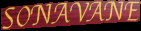
SONAVANE